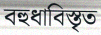
বহুধাবিস্তৃত